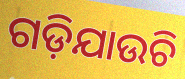
ଗଡ଼ିଯାଉଚି